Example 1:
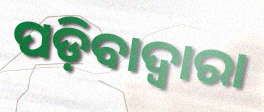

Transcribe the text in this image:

ପଡ଼ିବାଦ୍ୱାରା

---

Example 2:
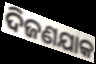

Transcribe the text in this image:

ଦିଜଣଯାକ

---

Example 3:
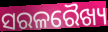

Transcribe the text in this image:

ସରଳରୈଖ୍ୟ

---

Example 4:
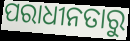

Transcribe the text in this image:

ପରାଧୀନତାରୁ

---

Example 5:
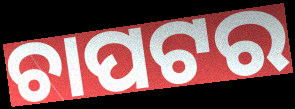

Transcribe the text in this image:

ଚାପଟର